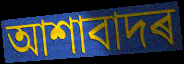
আশাবাদৰ